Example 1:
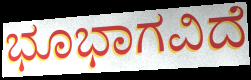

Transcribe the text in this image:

ಭೂಭಾಗವಿದೆ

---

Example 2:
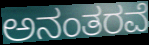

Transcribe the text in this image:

ಅನಂತರವೆ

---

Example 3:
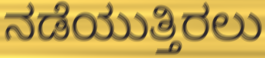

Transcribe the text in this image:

ನಡೆಯುತ್ತಿರಲು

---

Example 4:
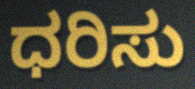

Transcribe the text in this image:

ಧರಿಸು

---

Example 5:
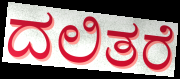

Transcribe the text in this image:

ದಲಿತರೆ